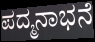
ಪದ್ಮನಾಭನೆ